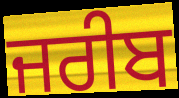
ਜਰੀਬ